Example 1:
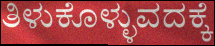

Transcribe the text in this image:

ತಿಳುಕೊಳ್ಳುವದಕ್ಕೆ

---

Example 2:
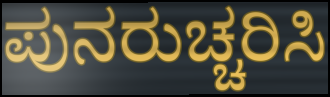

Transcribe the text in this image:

ಪುನರುಚ್ಚರಿಸಿ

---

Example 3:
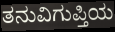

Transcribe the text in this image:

ತನುವಿಗುಪ್ತಿಯ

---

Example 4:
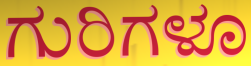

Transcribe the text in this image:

ಗುರಿಗಳೂ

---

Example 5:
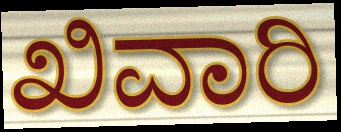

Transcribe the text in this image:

ಖಿವಾರಿ